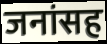
जनांसह